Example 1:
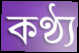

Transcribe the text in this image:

কণ্ঠ্য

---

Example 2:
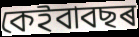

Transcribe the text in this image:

কেইবাবছৰ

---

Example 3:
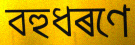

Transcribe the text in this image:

বহুধৰণে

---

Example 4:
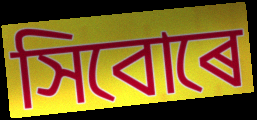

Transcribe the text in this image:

সিবোৰে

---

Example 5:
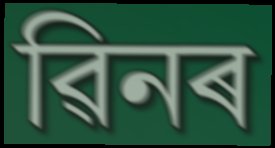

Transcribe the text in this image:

ৱিনৰ